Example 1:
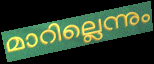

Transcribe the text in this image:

മാറില്ലെന്നും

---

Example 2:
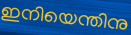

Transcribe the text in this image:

ഇനിയെന്തിനു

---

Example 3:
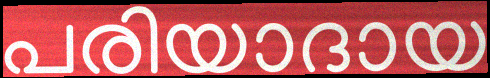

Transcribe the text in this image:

പരിയാദായ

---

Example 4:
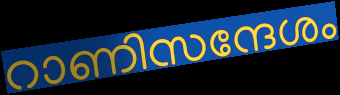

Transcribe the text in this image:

റാണിസന്ദേശം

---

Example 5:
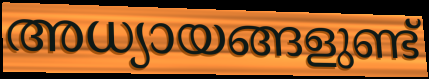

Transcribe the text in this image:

അധ്യായങ്ങളുണ്ട്